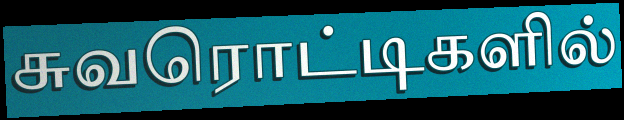
சுவரொட்டிகளில்